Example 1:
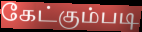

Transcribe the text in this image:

கேட்கும்படி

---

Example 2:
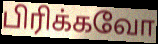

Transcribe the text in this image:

பிரிக்கவோ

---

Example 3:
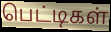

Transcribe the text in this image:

பெட்டிகள்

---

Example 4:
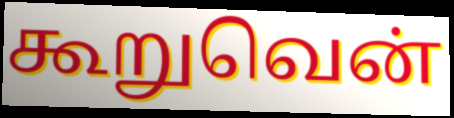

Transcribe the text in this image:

கூறுவென்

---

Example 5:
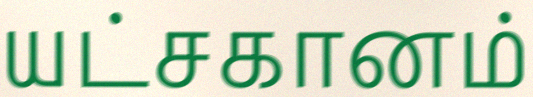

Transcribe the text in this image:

யட்சகானம்